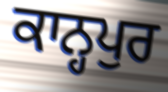
ਕਾਨ੍ਹਪੁਰ